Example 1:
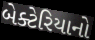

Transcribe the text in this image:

બેક્ટેરિયાનો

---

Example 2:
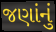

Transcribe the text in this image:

જણાંનું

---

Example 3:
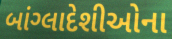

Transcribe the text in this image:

બાંગ્લાદેશીઓના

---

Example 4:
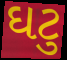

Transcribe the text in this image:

ઘટુ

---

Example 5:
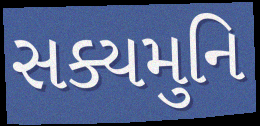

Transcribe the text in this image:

સક્યમુનિ